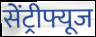
सेंट्रीफ्यूज